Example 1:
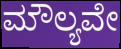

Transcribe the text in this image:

ಮೌಲ್ಯವೇ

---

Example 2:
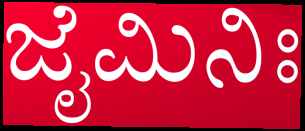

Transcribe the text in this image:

ಜೈಮಿನಿಃ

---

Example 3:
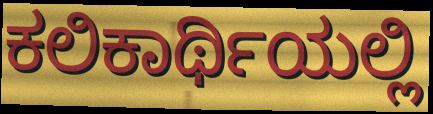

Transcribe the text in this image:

ಕಲಿಕಾರ್ಥಿಯಲ್ಲಿ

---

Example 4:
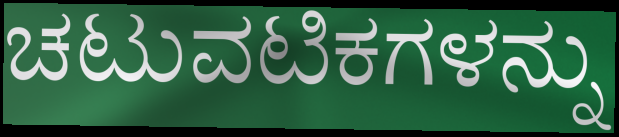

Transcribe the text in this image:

ಚಟುವಟಿಕಗಳನ್ನು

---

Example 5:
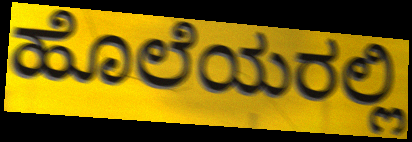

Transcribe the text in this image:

ಹೊಲೆಯರಲ್ಲಿ